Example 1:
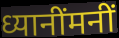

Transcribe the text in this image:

ध्यानींमनीं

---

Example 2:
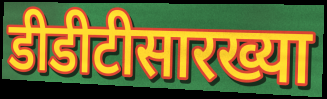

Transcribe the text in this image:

डीडीटीसारख्या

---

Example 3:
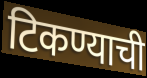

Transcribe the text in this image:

टिकण्याची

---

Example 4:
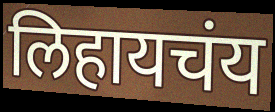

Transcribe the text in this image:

लिहायचंय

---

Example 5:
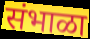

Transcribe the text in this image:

संभाळा